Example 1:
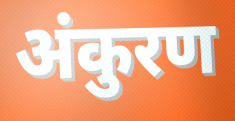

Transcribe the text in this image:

अंकुरण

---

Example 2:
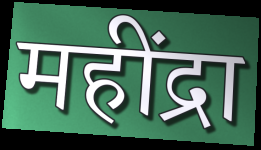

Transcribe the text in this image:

महींद्रा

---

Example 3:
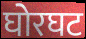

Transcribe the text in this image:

घोरघट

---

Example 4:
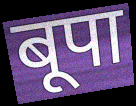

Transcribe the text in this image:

बूपा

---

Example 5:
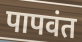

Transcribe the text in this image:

पापवंत